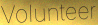
Volunteer